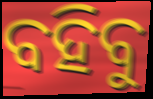
ବହିବୁ